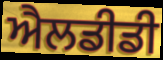
ਐਲਡੀਡੀ